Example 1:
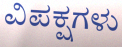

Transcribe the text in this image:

ವಿಪಕ್ಷಗಳು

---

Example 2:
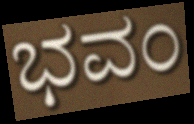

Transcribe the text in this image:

ಭವಂ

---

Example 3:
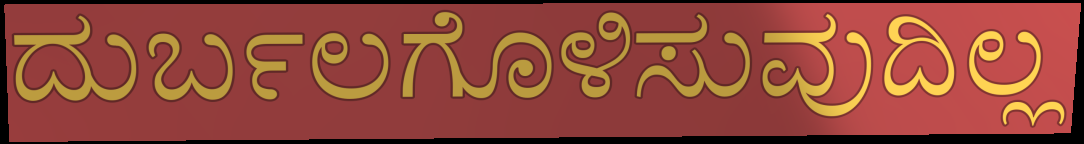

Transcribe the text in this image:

ದುರ್ಬಲಗೊಳಿಸುವುದಿಲ್ಲ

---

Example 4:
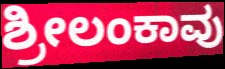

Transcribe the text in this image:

ಶ್ರೀಲಂಕಾವು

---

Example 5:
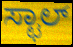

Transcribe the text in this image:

ಸ್ಟಾಲ್